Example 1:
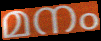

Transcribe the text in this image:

മനം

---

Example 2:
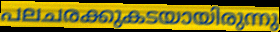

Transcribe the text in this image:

പലചരക്കുകടയായിരുന്നു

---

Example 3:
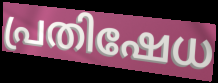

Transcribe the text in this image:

പ്രതിഷേധ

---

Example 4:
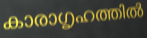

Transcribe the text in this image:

കാരാഗൃഹത്തിൽ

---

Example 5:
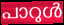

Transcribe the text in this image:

പാറുൾ